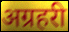
अग्रहरी